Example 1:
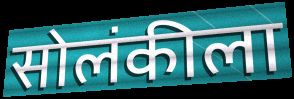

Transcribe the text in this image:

सोलंकीला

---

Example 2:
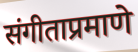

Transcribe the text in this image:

संगीताप्रमाणे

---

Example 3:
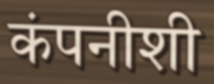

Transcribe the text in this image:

कंपनीशी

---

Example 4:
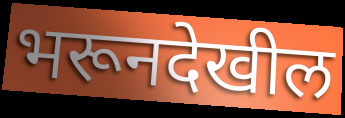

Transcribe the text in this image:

भरूनदेखील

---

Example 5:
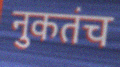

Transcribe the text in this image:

नुकतंच